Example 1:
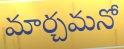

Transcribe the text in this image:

మార్చమనో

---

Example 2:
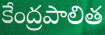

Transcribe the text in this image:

కేంద్రపాలిత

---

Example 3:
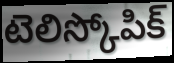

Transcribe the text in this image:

టెలిస్కోపిక్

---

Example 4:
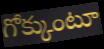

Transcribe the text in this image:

గోక్కుంటూ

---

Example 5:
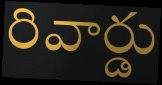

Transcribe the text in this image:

రివార్డు